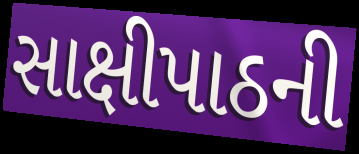
સાક્ષીપાઠની